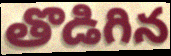
తొడిగిన